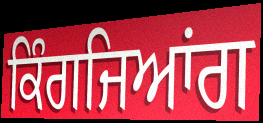
ਕਿੰਗਜਿਆਂਗ